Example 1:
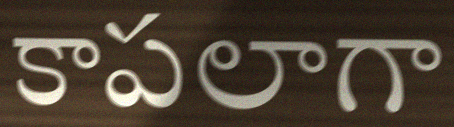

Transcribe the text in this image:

కాపలాగా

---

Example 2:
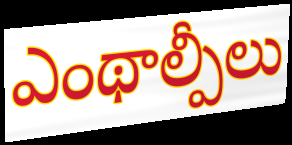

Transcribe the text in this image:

ఎంథాల్పీలు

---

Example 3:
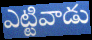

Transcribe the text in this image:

ఎట్టివాడు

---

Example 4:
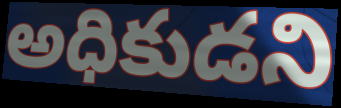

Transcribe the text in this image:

అధికుడని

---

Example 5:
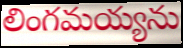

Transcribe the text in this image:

లింగమయ్యను